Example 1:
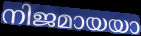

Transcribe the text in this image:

നിജമായയാ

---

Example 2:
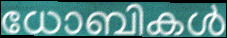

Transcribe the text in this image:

ധോബികൾ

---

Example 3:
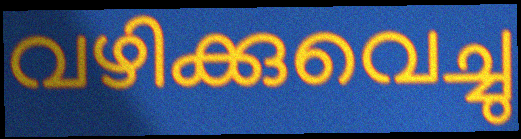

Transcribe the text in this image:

വഴിക്കുവെച്ചു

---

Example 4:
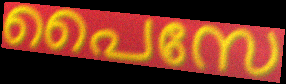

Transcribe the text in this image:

പൈസേ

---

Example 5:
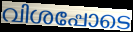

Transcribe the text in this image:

വിശപ്പോടെ